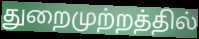
துறைமுற்றத்தில்